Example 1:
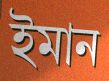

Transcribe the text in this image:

ইমান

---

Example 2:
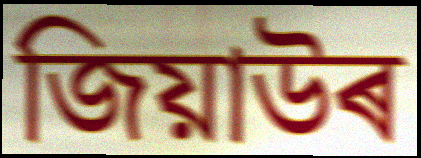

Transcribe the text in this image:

জিয়াউৰ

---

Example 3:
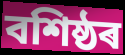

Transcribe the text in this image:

বশিষ্ঠৰ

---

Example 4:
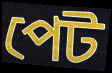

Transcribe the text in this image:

পেট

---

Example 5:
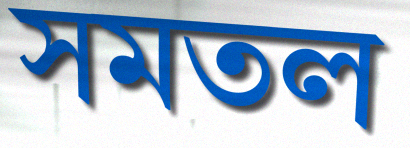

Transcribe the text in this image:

সমতল